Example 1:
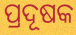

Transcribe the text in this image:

ପ୍ରଦୂଷକ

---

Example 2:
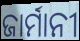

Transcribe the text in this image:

ଜାର୍ମାନୀ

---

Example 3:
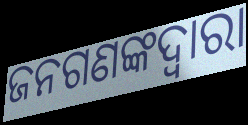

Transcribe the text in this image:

ଜନଗଣଙ୍କଦ୍ୱାରା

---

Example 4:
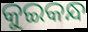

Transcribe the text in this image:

କୁଇକନ୍ଧ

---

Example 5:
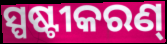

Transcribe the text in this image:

ସ୍ପଷ୍ଟୀକରଣ୍